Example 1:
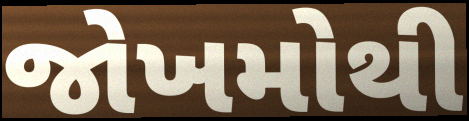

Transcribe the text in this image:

જોખમોથી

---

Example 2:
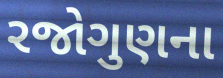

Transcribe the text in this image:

રજોગુણના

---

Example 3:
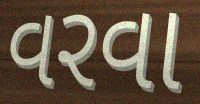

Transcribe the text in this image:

વરવા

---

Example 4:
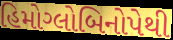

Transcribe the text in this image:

હિમોગ્લોબિનોપેથી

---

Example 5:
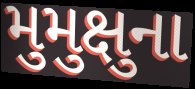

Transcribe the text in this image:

મુમુક્ષુના